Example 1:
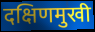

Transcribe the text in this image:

दक्षिणमुखी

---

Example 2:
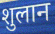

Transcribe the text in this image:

शुलान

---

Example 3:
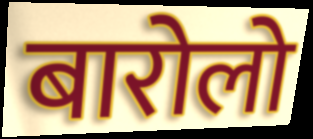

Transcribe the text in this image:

बारोलो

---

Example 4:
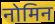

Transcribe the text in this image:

नोमिन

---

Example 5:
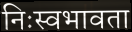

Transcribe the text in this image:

निःस्वभावता